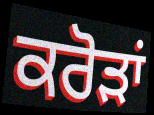
ਕਰੋੜਾਂ